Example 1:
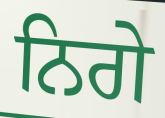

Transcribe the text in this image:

ਨਿਗੇ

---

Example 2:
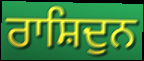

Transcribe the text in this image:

ਰਾਸ਼ਿਦੁਨ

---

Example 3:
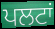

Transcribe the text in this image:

ਪਲਟਾਂ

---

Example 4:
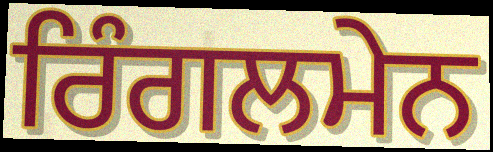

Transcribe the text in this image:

ਰਿੰਗਲਮੇਨ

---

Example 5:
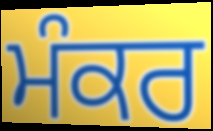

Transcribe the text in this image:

ਮੰਕਰ